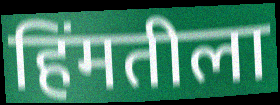
हिंमतीला